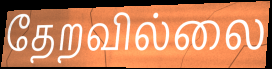
தேறவில்லை